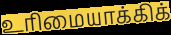
உரிமையாக்கிக்